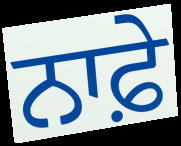
ਨਾਫ਼ੇ